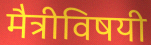
मैत्रीविषयी